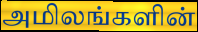
அமிலங்களின்